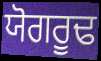
ਯੋਗਰੂਢ